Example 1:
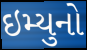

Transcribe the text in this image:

ઇમ્યુનો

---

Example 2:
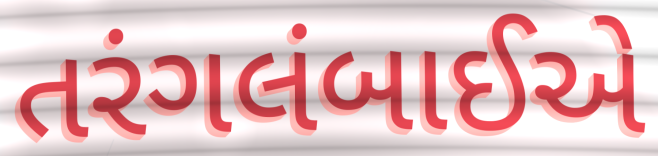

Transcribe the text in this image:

તરંગલંબાઈએ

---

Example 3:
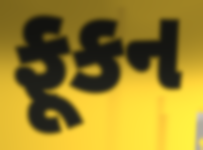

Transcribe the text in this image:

ફૂકન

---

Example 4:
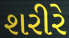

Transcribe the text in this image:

શરીરે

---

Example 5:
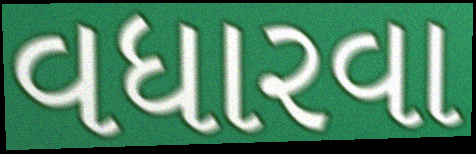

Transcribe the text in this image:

વધારવા